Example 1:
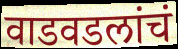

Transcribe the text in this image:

वाडवडलांचं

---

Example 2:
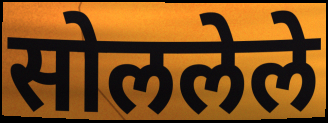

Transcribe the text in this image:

सोललेले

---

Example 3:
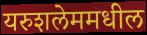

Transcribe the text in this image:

यरुशलेममधील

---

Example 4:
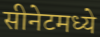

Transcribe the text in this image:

सीनेटमध्ये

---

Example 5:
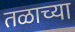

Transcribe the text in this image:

तळाच्या